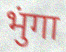
भुंगा